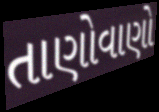
તાણોવાણો